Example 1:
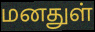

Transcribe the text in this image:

மனதுள்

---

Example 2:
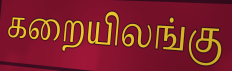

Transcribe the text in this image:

கறையிலங்கு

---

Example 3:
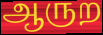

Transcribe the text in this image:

ஆருற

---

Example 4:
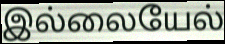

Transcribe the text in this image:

இல்லையேல்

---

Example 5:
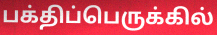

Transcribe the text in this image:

பக்திப்பெருக்கில்